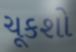
ચૂકશો